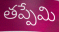
తప్పేమి